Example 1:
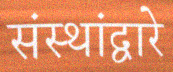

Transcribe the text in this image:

संस्थांद्वारे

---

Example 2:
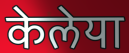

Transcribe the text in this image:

केलेया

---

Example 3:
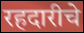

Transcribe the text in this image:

रहदारीचे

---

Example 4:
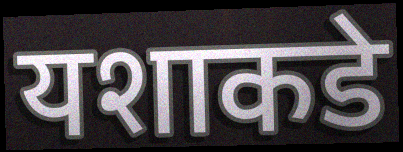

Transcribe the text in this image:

यशाकडे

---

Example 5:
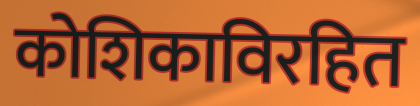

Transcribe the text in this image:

कोशिकाविरहित